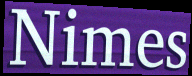
Nimes